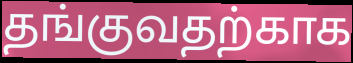
தங்குவதற்காக